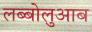
लब्बोलुआब